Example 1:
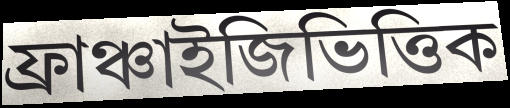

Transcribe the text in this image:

ফ্রাঞ্চাইজিভিত্তিক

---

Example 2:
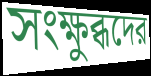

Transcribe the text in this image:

সংক্ষুব্ধদের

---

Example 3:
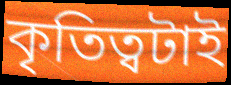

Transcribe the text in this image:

কৃতিত্বটাই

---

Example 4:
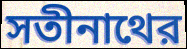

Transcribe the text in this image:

সতীনাথের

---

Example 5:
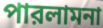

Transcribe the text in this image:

পারলামনা